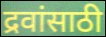
द्रवांसाठी